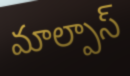
మాల్పాస్